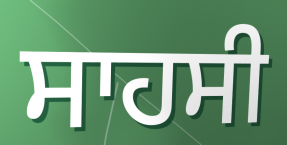
ਸਾਹਸੀ